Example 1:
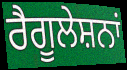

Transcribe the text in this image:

ਰੈਗੂਲੇਸ਼ਨਾਂ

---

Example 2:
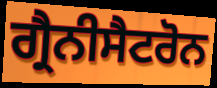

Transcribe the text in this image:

ਗ੍ਰੈਨੀਸੈਟਰੋਨ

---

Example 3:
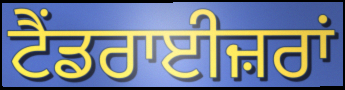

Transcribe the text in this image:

ਟੈਂਡਰਾਈਜ਼ਰਾਂ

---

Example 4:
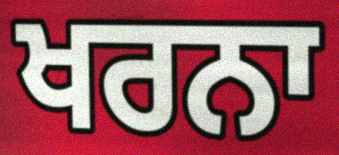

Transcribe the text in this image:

ਖਰਨਾ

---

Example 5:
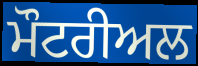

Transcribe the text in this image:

ਮੌਟਰੀਅਲ